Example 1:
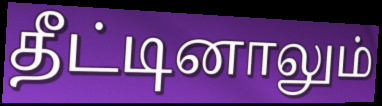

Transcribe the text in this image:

தீட்டினாலும்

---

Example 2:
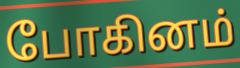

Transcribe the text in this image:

போகினம்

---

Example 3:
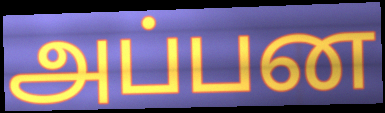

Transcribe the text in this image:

அப்பன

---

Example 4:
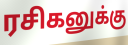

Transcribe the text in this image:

ரசிகனுக்கு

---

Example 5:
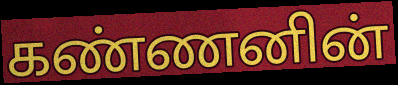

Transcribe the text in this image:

கண்ணனின்